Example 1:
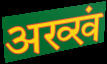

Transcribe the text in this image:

अख्खं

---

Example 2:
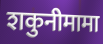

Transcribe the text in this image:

शकुनीमामा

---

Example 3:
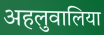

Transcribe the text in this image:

अहलुवालिया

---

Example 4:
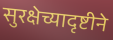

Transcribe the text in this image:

सुरक्षेच्यादृष्टीने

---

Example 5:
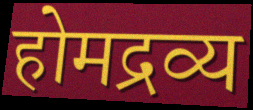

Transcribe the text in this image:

होमद्रव्य